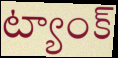
ట్యాంక్